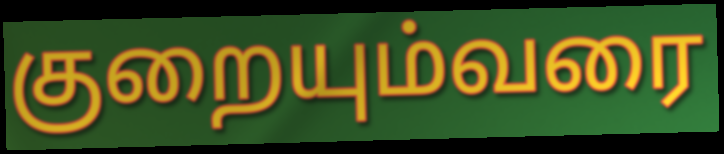
குறையும்வரை